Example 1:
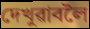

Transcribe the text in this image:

দেখুৱাবলৈ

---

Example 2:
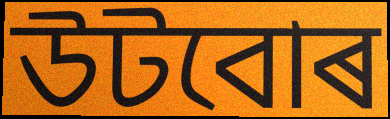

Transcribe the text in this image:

উটবোৰ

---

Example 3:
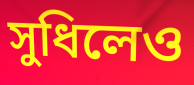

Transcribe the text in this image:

সুধিলেও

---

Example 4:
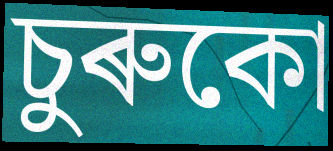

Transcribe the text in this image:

চুৰুকো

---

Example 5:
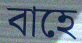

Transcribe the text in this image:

বাহে